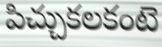
పిచ్చుకలకంటె